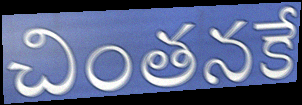
చింతనకే